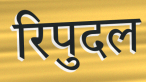
रिपुदल